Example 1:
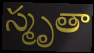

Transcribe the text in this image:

స్మృతా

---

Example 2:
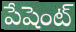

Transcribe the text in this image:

పేషెంట్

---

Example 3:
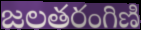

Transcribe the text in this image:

జలతరంగిణి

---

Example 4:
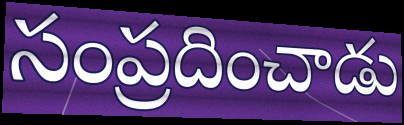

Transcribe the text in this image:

సంప్రదించాడు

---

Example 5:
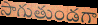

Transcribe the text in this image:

సాగుతుండగా